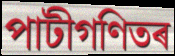
পাটীগণিতৰ